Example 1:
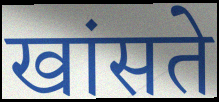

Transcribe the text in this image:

खांसते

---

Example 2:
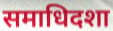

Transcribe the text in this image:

समाधिदशा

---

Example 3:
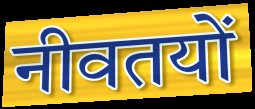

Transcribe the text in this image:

नीवतयों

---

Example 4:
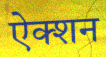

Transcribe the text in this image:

ऐक्‍शन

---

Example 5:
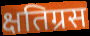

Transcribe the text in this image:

क्षतिग्रस